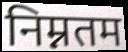
निम्नतम